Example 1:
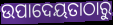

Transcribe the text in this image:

ଉପାଦେୟତାଠାରୁ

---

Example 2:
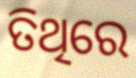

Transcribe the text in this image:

ତିଥିରେ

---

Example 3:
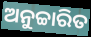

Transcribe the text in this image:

ଅନୁଚ୍ଚାରିତ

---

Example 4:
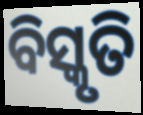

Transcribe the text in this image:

ବିସ୍କୃତି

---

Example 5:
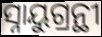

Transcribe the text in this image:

ସ୍ନାୟୁଗ୍ରନ୍ଥୀ